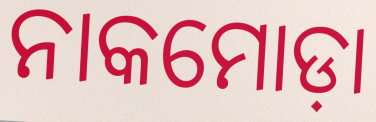
ନାକମୋଡ଼ା